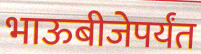
भाऊबीजेपर्यंत